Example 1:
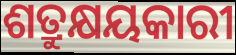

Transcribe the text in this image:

ଶତ୍ରୁକ୍ଷୟକାରୀ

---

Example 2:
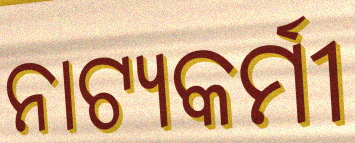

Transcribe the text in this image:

ନାଟ୍ୟକର୍ମୀ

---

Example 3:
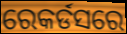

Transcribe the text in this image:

ରେକର୍ଡସରେ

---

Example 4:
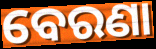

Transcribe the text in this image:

ବେରଣା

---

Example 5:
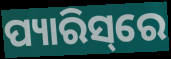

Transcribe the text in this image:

ପ୍ୟାରିସ୍‌ରେ